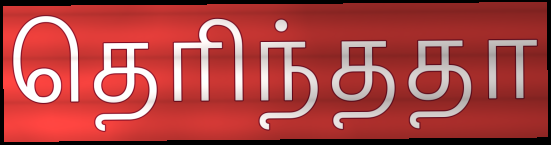
தெரிந்ததா